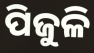
ପିଜୁଳି